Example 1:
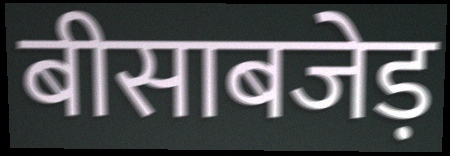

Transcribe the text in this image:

बीसाबजेड़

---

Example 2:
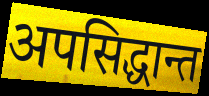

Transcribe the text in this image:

अपसिद्धान्त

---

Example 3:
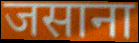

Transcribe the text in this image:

जसाना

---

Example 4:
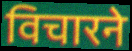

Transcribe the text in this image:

विचारने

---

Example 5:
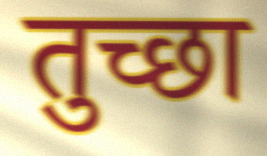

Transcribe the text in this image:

तुच्छा